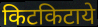
किटकिटाये